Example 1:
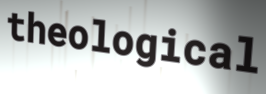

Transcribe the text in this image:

theological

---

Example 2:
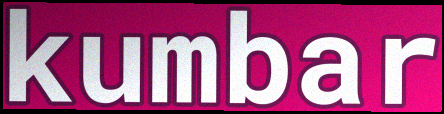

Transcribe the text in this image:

kumbar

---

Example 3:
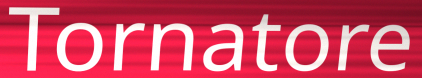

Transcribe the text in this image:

Tornatore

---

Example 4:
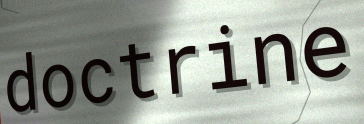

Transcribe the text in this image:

doctrine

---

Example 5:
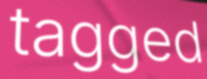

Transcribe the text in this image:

tagged